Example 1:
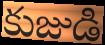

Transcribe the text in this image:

కుజుడి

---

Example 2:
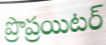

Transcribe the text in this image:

ప్రొప్రయిటర్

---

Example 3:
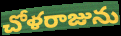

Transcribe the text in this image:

చోళరాజును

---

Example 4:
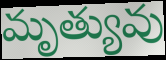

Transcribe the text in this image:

మృత్యువు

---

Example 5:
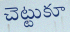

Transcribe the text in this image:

చెట్టుకూ